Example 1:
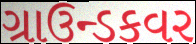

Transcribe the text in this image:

ગ્રાઉન્ડકવર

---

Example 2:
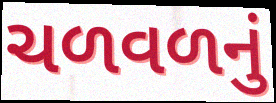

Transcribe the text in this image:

ચળવળનું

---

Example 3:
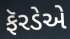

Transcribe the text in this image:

ફૅરડેએ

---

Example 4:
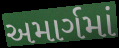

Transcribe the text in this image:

અમાર્ગમાં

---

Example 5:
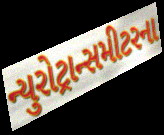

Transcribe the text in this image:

ન્યુરોટ્રાન્સમીટરના